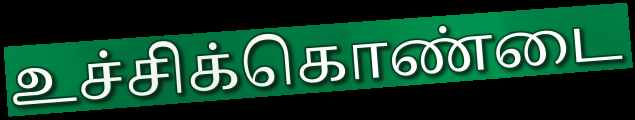
உச்சிக்கொண்டை